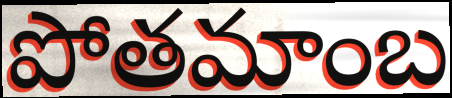
పోతమాంబ